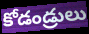
కోడండ్రులు